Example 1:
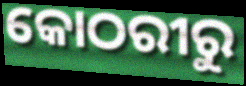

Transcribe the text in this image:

କୋଠରୀରୁ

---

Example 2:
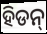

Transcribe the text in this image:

ହିଡନ୍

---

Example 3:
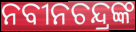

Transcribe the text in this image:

ନବୀନଚନ୍ଦ୍ରଙ୍କ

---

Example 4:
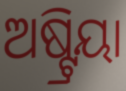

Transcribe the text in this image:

ଅଷ୍ଟ୍ରିୟା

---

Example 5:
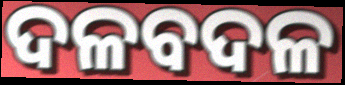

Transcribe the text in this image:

ଦଳବଦଳ